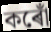
কৰোঁ